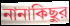
নানাকিছুর